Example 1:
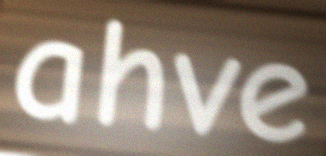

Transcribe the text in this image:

ahve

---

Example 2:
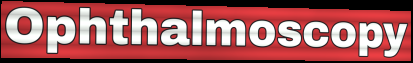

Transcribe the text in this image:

Ophthalmoscopy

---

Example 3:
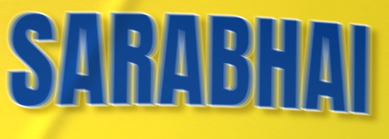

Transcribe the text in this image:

SARABHAI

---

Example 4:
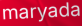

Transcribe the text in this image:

maryada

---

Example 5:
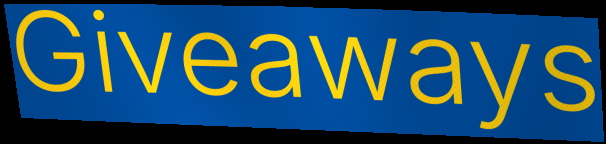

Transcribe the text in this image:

Giveaways